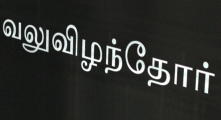
வலுவிழந்தோர்